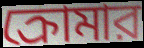
ক্রোমার